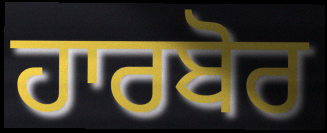
ਹਾਰਬੋਰ